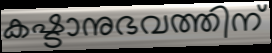
കഷ്ടാനുഭവത്തിന്